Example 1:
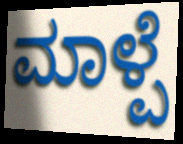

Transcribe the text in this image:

ಮಾಳ್ಪೆ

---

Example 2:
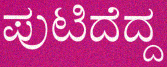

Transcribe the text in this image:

ಪುಟಿದೆದ್ದ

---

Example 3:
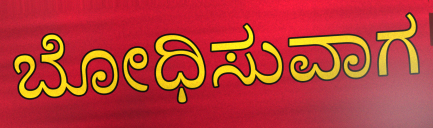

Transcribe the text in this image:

ಬೋಧಿಸುವಾಗ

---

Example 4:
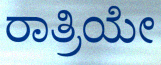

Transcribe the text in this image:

ರಾತ್ರಿಯೇ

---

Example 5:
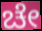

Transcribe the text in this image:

ಚೇ